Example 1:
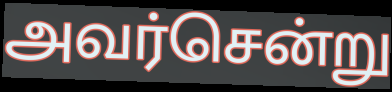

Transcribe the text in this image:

அவர்சென்று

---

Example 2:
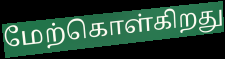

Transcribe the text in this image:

மேற்கொள்கிறது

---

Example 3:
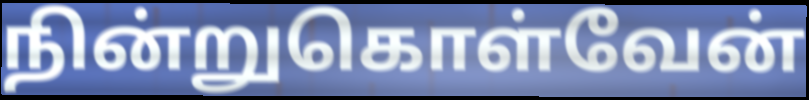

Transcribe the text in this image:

நின்றுகொள்வேன்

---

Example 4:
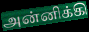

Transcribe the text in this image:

அன்னிக்கி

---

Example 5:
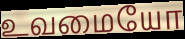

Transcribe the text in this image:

உவமையோ